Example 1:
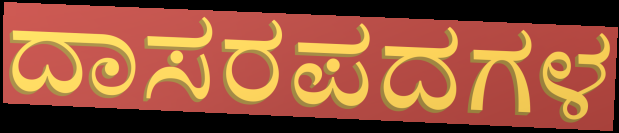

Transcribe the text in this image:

ದಾಸರಪದಗಳ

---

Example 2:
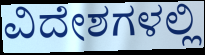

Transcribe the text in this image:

ವಿದೇಶಗಳಲ್ಲಿ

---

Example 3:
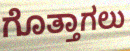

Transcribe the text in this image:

ಗೊತ್ತಾಗಲು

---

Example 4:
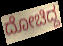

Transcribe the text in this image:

ದೋಚಿದ್ದ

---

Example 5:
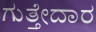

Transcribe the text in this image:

ಗುತ್ತೇದಾರ